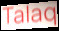
Talaq